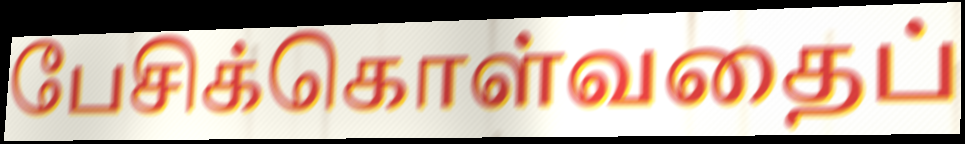
பேசிக்கொள்வதைப்